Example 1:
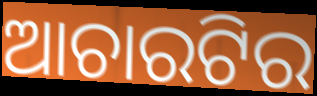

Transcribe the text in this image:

ଆଚାରଟିର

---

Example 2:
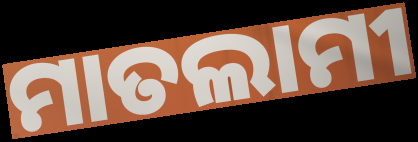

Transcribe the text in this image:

ମାତଲାମୀ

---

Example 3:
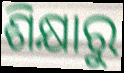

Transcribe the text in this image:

ଶିକ୍ଷାରୁ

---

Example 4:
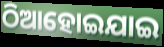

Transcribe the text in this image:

ଠିଆହୋଇଯାଇ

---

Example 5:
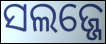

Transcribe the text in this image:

ସଲଜ୍ଜେ